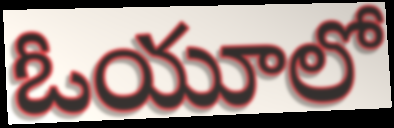
ఓయూలో